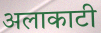
अलाकाटी